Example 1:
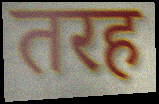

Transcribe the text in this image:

तरह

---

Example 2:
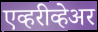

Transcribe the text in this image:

एव्हरीव्हेअर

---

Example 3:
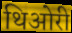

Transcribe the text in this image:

थिओरी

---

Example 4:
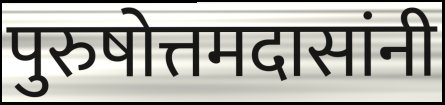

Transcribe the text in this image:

पुरुषोत्तमदासांनी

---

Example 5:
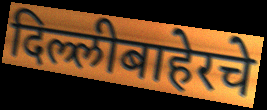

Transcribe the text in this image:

दिल्लीबाहेरचे